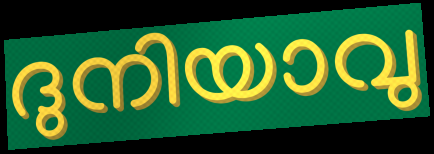
ദുനിയാവു